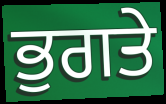
ਭੁਗਤੇ